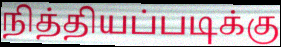
நித்தியப்படிக்கு